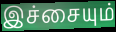
இச்சையும்